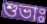
শুভাঃ